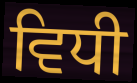
ਵਿਧੀ